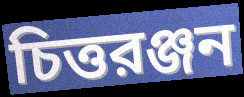
চিত্তরঞ্জন